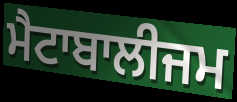
ਮੈਟਾਬਾਲੀਜਮ